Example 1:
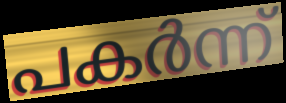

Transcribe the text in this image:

പകർന്ന്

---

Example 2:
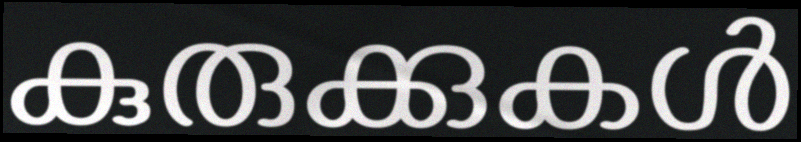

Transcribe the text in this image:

കുരുക്കുകൾ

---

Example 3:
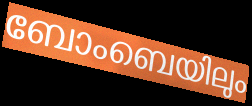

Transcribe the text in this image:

ബോംബെയിലും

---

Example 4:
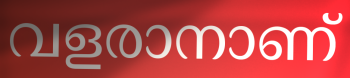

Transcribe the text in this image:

വളരാനാണ്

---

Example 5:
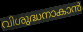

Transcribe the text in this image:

വിശുദ്ധനാകാൻ